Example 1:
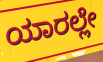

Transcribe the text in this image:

ಯಾರಲ್ಲೇ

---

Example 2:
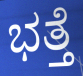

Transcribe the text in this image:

ಭತ್ತೆ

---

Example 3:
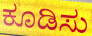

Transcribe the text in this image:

ಕೂಡಿಸು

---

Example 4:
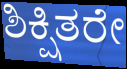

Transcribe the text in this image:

ಶಿಕ್ಷಿತರೇ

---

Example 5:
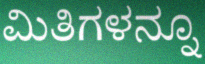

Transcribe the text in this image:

ಮಿತಿಗಳನ್ನೂ